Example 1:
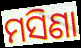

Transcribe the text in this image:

ମସିଣା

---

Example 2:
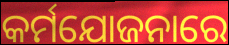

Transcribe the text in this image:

କର୍ମଯୋଜନାରେ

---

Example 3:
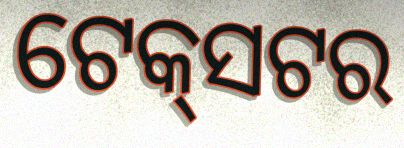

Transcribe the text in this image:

ଟେକ୍‌ସଟର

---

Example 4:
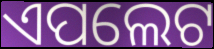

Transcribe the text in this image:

ଏପଲେଟ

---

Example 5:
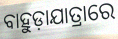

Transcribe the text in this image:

ବାହୁଡ଼ାଯାତ୍ରାରେ